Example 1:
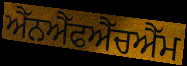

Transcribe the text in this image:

ਐੱਨਐੱਫਐੱਚਐੱਮ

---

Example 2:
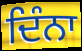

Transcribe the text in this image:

ਦਿੰਨਾ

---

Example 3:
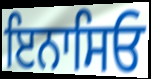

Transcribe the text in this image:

ਇਨਾਸਿਓ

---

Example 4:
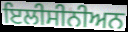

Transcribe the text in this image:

ਇਲੀਸੀਨੀਅਨ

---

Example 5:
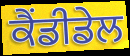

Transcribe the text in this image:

ਕੈਂਡੀਡੇਲ